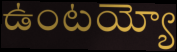
ఉంటయ్యో